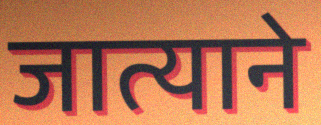
जात्याने